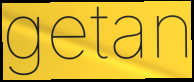
getan